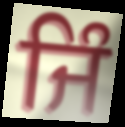
ਜਿੰ